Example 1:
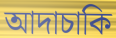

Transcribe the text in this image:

আদাচাকি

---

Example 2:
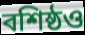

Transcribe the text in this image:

বশিষ্ঠও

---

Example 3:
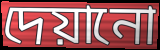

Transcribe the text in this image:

দেয়ানো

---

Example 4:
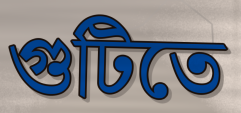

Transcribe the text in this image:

গুটিতে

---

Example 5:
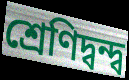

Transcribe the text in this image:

শ্রেণিদ্বন্দ্ব